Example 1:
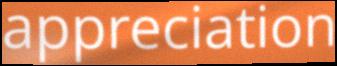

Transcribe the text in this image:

appreciation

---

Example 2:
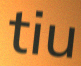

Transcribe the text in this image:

tiu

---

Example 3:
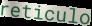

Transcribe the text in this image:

reticulo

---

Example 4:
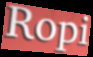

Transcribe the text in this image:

Ropi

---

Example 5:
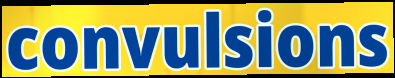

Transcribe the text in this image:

convulsions